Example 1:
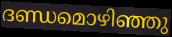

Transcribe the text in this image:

ദണ്ഡമൊഴിഞ്ഞു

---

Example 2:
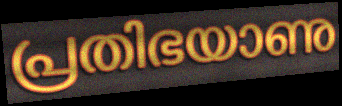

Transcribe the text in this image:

പ്രതിഭയാണു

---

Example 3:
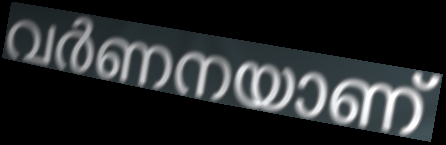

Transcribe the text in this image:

വർണനയാണ്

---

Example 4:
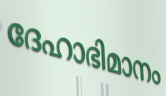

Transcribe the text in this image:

ദേഹാഭിമാനം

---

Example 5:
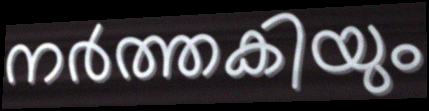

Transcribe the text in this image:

നർത്തകിയും